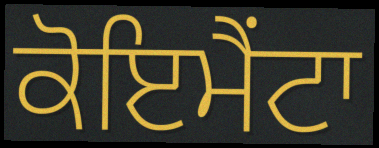
ਕੋਇਮੈਂਟਾ